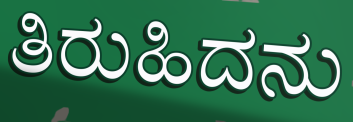
ತಿರುಹಿದನು